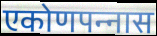
एकोणपन्नास